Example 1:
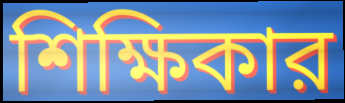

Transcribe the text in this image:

শিক্ষিকার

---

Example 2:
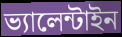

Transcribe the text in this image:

ভ্যালেন্টাইন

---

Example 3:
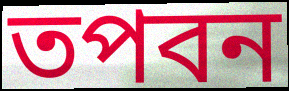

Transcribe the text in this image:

তপবন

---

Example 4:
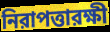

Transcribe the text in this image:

নিরাপত্তারক্ষী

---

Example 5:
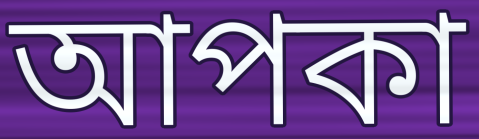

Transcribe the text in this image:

আপকা